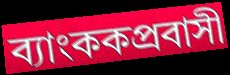
ব্যাংককপ্রবাসী